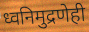
ध्वनिमुद्रणेही